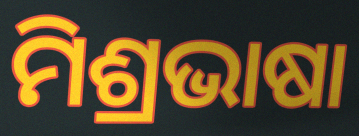
ମିଶ୍ରଭାଷା